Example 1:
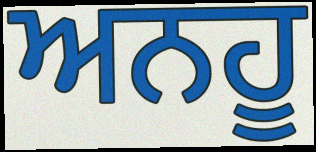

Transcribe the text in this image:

ਅਨਹੂ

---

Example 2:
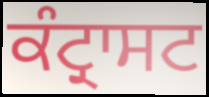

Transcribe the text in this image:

ਕੰਟ੍ਰਾਸਟ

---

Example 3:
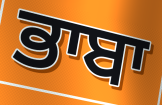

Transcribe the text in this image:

ਭਾਬਾ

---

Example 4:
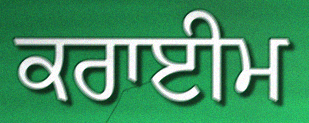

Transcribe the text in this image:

ਕਰਾਈਮ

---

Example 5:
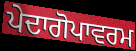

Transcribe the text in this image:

ਪੇਦਾਗੋਪਾਵਰਮ